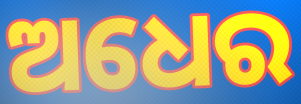
ଅଧେର